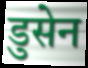
डुसेन